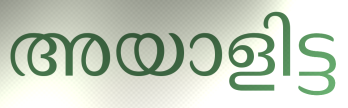
അയാളിട്ട